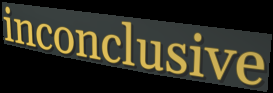
inconclusive